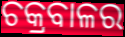
ଚକ୍ରବାଳର